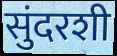
सुंदरशी